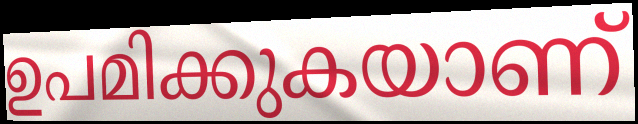
ഉപമിക്കുകയാണ്